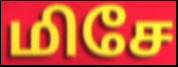
மிசே